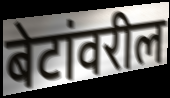
बेटांवरील